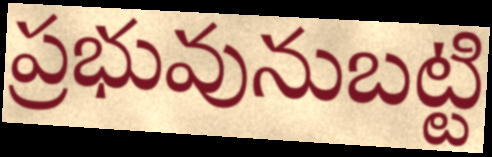
ప్రభువునుబట్టి